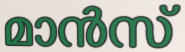
മാൻസ്